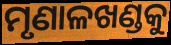
ମୃଣାଳଖଣ୍ଡକୁ